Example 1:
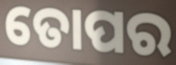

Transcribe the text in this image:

ତୋପର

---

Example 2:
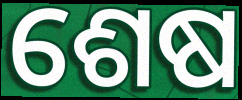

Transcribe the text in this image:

ଶେଷ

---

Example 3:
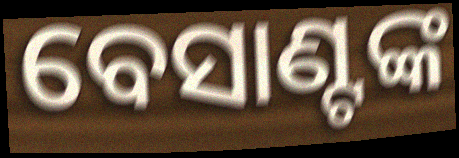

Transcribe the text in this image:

ବେସାଣ୍ଟଙ୍କ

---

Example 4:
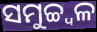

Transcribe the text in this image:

ସମୁଚ୍ଚ୍ୱଳ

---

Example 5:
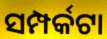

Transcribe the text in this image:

ସମ୍ପର୍କଟା